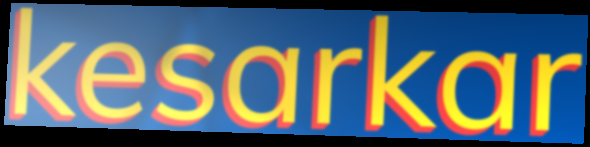
kesarkar